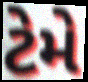
ટેમે